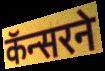
कॅन्सरने